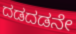
ದಡದಡನೇ